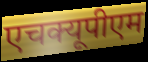
एचक्यूपीएम